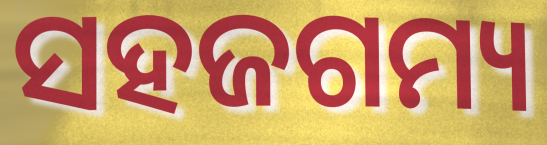
ସହଜଗମ୍ୟ